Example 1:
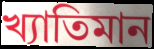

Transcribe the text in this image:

খ্যাতিমান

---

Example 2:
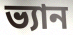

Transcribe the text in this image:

ভ্যান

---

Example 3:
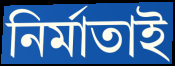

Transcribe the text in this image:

নিৰ্মাতাই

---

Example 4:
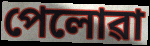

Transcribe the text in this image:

পেলোৱা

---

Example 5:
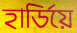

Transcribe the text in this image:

হাৰ্ডিয়ে